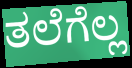
ತಲೆಗೆಲ್ಲ